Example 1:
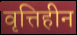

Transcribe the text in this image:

वृत्तिहीन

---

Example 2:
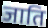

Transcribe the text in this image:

जाति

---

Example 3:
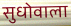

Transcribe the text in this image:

सुधोवाला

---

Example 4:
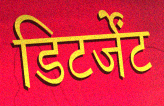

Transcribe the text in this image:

डिटर्जेंट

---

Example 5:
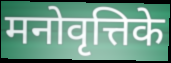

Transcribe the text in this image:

मनोवृत्तिके